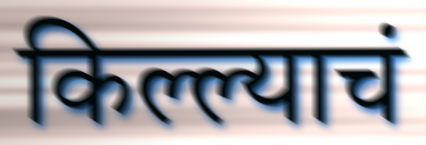
किल्ल्याचं